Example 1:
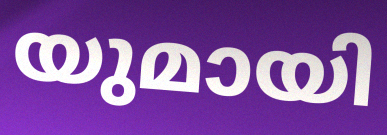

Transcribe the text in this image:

യുമായി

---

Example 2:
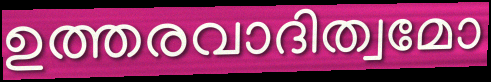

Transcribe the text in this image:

ഉത്തരവാദിത്വമോ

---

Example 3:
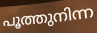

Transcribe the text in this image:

പൂത്തുനിന്ന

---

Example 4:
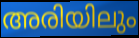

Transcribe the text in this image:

അരിയിലും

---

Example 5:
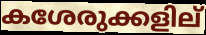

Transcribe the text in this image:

കശേരുക്കളില്